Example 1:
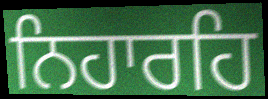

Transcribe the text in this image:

ਨਿਹਾਰਹਿ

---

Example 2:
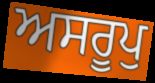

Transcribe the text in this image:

ਅਸਰੂਪੁ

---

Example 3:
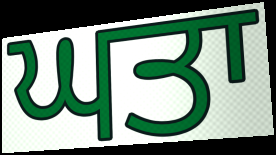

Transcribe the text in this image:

ਘਤਾ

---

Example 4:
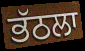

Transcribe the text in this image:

ਭੱਠਲਾ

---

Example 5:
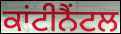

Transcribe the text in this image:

ਕਾਂਟੀਨੈਂਟਲ